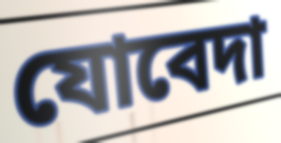
যোবেদা